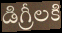
డిగ్రీలకి